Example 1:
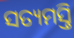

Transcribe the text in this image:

ସତ୍ୟମସ୍ତି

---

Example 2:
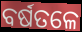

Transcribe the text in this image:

ବର୍ଷତଳେ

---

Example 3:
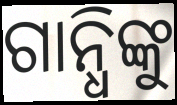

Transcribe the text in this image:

ଗାନ୍ଧିଙ୍କୁ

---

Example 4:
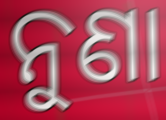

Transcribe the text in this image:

ନୁଣା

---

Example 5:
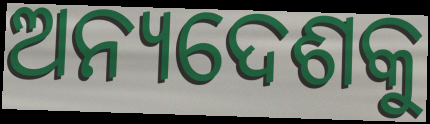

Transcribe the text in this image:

ଅନ୍ୟଦେଶକୁ